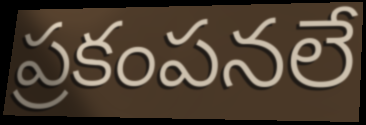
ప్రకంపనలే